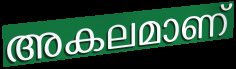
അകലമാണ്